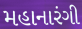
મહાનારંગી